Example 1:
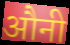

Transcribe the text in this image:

औनी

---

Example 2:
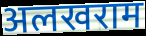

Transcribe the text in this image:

अलखराम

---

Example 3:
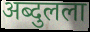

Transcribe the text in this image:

अब्दुलला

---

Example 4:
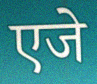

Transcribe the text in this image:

एजे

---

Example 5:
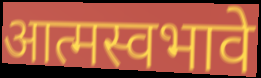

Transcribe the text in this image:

आत्मस्वभावे